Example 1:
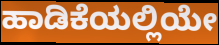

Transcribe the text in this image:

ಹಾಡಿಕೆಯಲ್ಲಿಯೇ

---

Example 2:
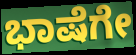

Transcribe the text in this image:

ಭಾಷೆಗೇ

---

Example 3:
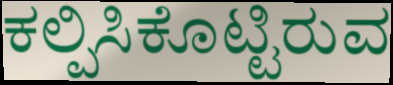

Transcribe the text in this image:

ಕಲ್ಪಿಸಿಕೊಟ್ಟಿರುವ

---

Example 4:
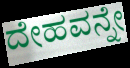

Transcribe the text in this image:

ದೇಹವನ್ನೇ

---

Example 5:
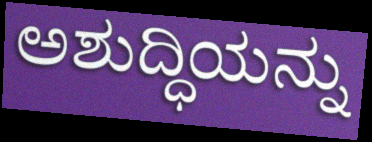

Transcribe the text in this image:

ಅಶುದ್ಧಿಯನ್ನು